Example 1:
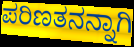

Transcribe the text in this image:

ಪರಿಣತನನ್ನಾಗಿ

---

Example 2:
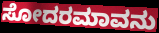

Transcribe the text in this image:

ಸೋದರಮಾವನು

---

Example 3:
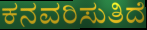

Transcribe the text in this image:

ಕನವರಿಸುತಿದೆ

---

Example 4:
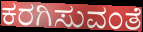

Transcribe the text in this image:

ಕರಗಿಸುವಂತೆ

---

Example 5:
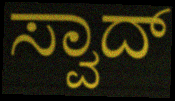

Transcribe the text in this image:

ಸ್ವಾದ್